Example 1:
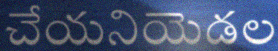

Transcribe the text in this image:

చేయనియెడల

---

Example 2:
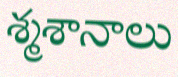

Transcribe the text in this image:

శ్మశానాలు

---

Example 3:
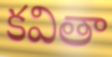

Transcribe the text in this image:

కవితా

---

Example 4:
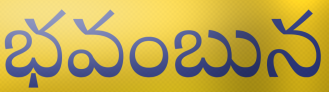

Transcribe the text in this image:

భవంబున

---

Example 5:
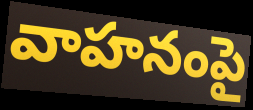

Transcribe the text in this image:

వాహనంపై